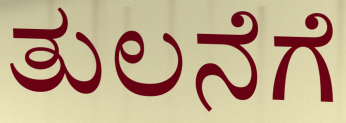
ತುಲನೆಗೆ